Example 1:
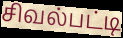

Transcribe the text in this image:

சிவல்பட்டி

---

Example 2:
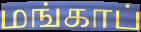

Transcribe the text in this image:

மங்காப்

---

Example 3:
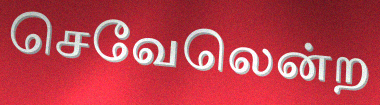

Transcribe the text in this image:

செவேலென்ற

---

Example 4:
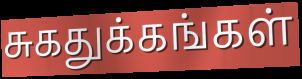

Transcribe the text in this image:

சுகதுக்கங்கள்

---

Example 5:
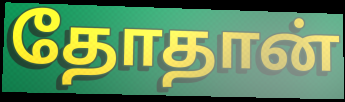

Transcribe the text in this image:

தோதான்